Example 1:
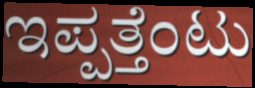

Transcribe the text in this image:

ಇಪ್ಪತ್ತೆಂಟು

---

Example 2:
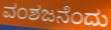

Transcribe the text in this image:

ವಂಶಜನೆಂದು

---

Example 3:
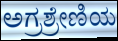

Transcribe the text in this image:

ಅಗ್ರಶ್ರೇಣಿಯ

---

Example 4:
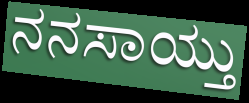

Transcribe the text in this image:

ನನಸಾಯ್ತು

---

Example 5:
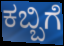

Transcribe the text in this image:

ಕಬ್ಬಿಗೆ